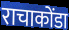
राचाकोंडा